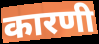
कारणी